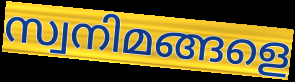
സ്വനിമങ്ങളെ